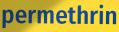
permethrin